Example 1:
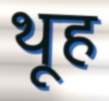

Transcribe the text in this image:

थूह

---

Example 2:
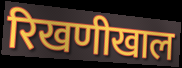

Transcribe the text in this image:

रिखणीखाल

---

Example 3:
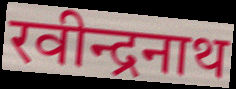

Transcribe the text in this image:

रवीन्‍द्रनाथ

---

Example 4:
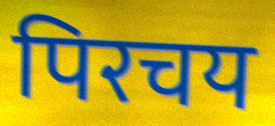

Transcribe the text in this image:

पिरचय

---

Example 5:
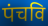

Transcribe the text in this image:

पंचवि